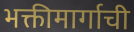
भक्तीमार्गाची